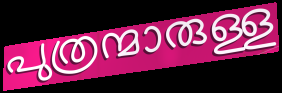
പുത്രന്മാരുള്ള